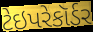
ટેઇપરેકૉર્ડર